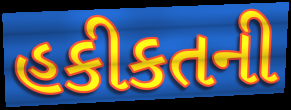
હકીકતની